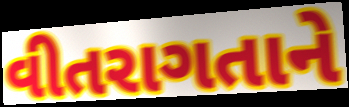
વીતરાગતાને